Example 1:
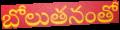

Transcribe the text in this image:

బోలుతనంతో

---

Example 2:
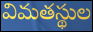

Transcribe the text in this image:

విమతస్థుల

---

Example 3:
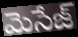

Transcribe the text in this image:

మెసేజ్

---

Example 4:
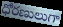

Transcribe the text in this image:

ధోరణులుగా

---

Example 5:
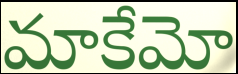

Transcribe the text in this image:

మాకేమో